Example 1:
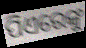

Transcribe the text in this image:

ପିଏରେଙ୍କୁ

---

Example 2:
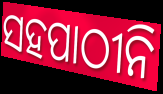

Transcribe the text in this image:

ସହପାଠୀନି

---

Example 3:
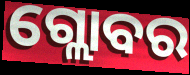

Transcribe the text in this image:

ଗ୍ଲୋବର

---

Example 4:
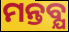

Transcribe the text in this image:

ମନ୍ତବ୍ଯ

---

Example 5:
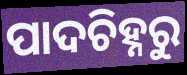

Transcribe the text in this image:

ପାଦଚିହ୍ନରୁ